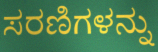
ಸರಣಿಗಳನ್ನು